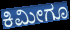
ಕಿಮೀಗೂ